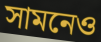
সামনেও